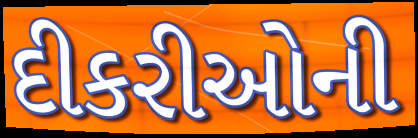
દીકરીઓની